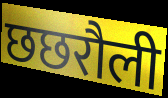
छछरौली